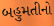
બહુમતીનો